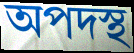
অপদস্থ